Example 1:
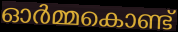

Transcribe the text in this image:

ഓർമ്മകൊണ്ട്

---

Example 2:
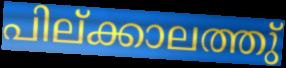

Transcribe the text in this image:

പില്ക്കാലത്തു്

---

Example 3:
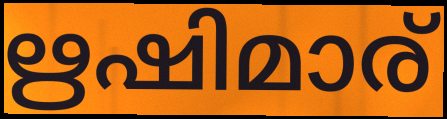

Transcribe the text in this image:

ഋഷിമാര്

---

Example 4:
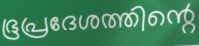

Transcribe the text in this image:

ഭൂപ്രദേശത്തിന്റെ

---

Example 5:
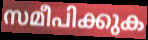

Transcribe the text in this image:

സമീപിക്കുക